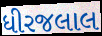
ધીરજલાલ